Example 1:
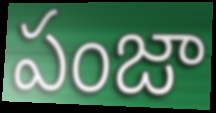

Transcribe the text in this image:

పంజా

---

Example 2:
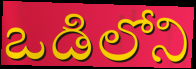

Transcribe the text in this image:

ఒడిలోని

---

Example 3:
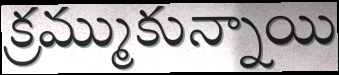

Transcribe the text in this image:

క్రమ్ముకున్నాయి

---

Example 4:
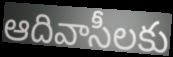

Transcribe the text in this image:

ఆదివాసీలకు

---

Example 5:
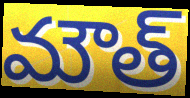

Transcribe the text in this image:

మౌత్